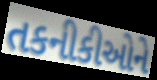
તકનીકીઓને